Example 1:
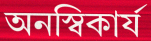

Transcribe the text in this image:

অনস্বিকার্য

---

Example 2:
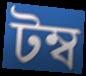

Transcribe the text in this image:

টম্ব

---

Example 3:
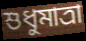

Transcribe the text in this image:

শুধুমাত্রা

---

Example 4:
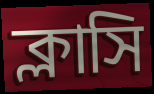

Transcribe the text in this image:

ক্লাসি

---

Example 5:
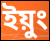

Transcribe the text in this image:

ইয়ুং